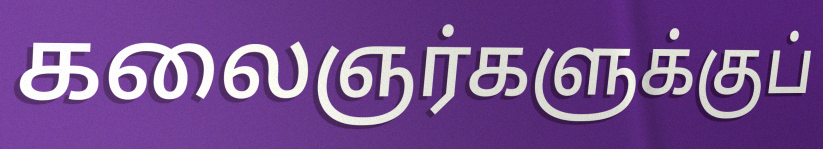
கலைஞர்களுக்குப்